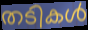
തടികൾ